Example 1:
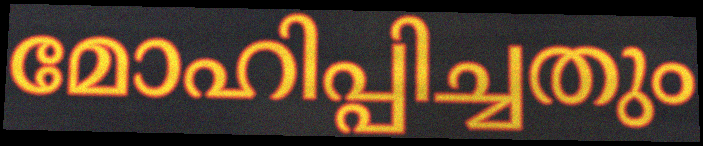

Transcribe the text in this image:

മോഹിപ്പിച്ചതും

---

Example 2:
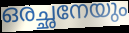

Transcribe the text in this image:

ഒരച്ഛനേയും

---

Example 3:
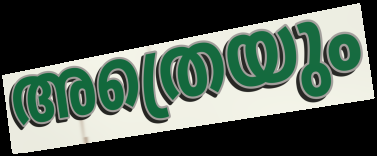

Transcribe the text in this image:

അത്രെയും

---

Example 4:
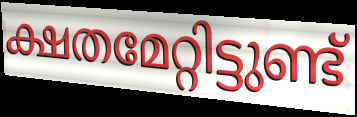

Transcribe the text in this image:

ക്ഷതമേറ്റിട്ടുണ്ട്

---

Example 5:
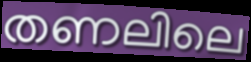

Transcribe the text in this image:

തണലിലെ